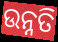
ଉନ୍ନତି